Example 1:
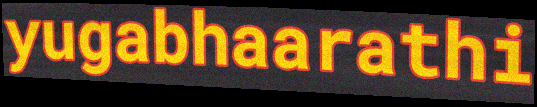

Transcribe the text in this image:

yugabhaarathi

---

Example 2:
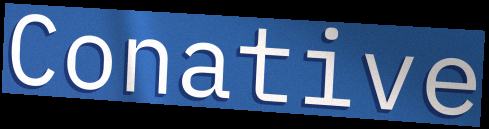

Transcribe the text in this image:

Conative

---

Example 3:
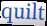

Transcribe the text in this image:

quilt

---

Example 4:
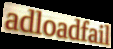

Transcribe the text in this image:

adloadfail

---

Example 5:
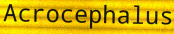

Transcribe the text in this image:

Acrocephalus